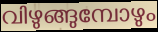
വിഴുങ്ങുമ്പോഴും